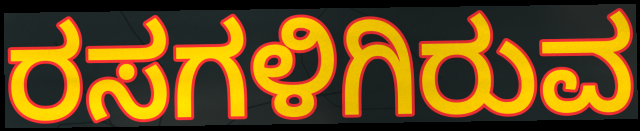
ರಸಗಳಿಗಿರುವ